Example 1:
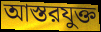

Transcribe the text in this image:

আস্তরযুক্ত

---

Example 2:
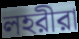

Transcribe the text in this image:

লহরীরা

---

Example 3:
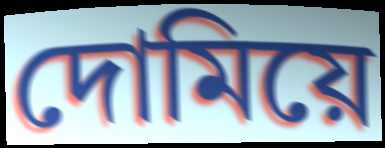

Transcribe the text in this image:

দোমিয়ে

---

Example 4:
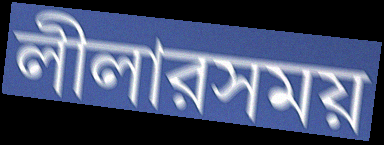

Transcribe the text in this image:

লীলারসময়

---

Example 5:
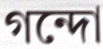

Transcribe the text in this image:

গন্দো